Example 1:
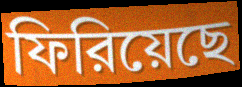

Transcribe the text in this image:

ফিরিয়েছে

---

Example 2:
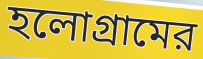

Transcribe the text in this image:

হলোগ্রামের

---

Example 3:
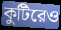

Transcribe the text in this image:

কুটিরেও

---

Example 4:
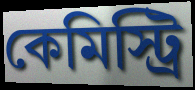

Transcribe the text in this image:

কেমিস্ট্রি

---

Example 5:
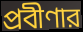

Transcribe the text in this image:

প্রবীণার